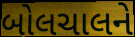
બોલચાલને